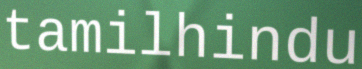
tamilhindu